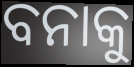
ବନାକୁ